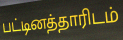
பட்டினத்தாரிடம்